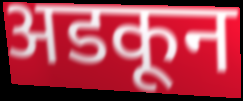
अडकून